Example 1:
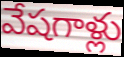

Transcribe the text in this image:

వేషగాళ్లు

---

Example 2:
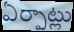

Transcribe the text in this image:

ఏర్పాట్లు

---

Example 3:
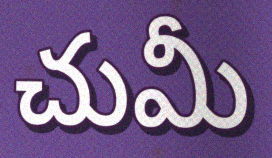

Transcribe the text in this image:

చుమీ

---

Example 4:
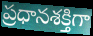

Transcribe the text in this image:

ప్రధానశక్తిగా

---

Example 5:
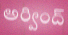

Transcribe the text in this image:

అర్వింద్